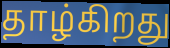
தாழ்கிறது